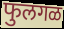
फुलगळ